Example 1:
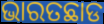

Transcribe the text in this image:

ଭାରତଛାଡ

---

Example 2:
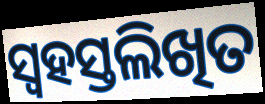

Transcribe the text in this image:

ସ୍ୱହସ୍ତଲିଖିତ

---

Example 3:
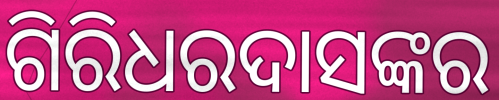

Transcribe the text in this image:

ଗିରିଧରଦାସଙ୍କର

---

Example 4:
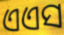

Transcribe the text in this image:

ଏଏସ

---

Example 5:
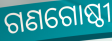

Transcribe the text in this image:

ଗଣଗୋଷ୍ଠୀ